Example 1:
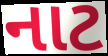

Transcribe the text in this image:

નાટ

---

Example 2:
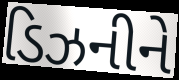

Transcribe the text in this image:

ડિઝનીને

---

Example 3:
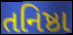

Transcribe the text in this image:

તનિષ્ઠા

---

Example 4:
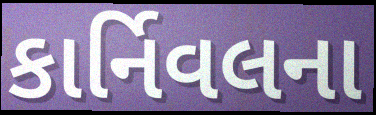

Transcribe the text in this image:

કાર્નિવલના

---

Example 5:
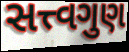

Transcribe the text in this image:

સત્ત્વગુણ